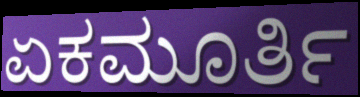
ಏಕಮೂರ್ತಿ